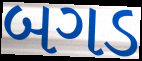
બગડ